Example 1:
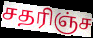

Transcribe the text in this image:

சதரிஞ்ச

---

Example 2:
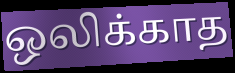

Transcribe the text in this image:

ஒலிக்காத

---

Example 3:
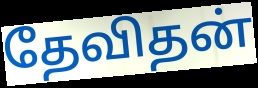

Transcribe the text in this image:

தேவிதன்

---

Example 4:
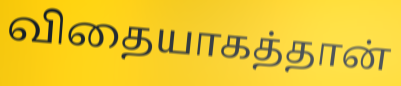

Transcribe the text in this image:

விதையாகத்தான்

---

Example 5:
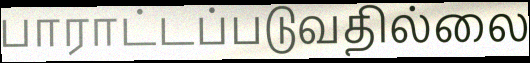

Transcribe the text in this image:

பாராட்டப்படுவதில்லை